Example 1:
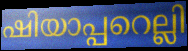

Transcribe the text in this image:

ഷിയാപ്പറെല്ലി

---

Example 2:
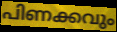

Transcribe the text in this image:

പിണക്കവും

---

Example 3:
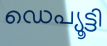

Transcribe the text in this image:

ഡെപ്യൂട്ടി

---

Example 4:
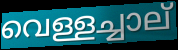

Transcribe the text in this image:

വെള്ളച്ചാല്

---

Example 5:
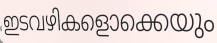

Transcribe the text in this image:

ഇടവഴികളൊക്കെയും